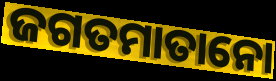
ଜଗତମାତାନୋ